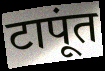
टापूंत